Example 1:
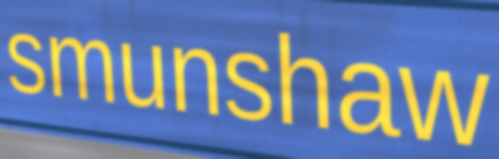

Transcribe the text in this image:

smunshaw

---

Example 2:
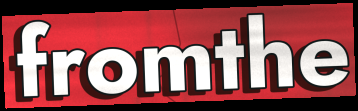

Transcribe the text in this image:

fromthe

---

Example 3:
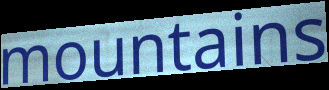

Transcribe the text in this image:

mountains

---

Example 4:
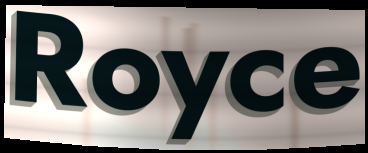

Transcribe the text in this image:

Royce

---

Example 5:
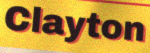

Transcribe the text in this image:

Clayton